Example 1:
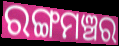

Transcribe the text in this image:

ରଙ୍ଗମଞ୍ଚର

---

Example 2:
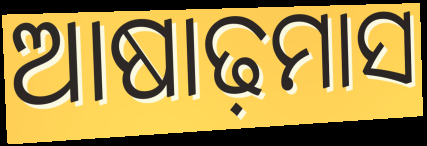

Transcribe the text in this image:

ଆଷାଢ଼ମାସ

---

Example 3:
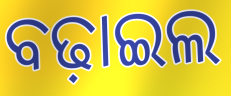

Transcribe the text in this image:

ବଢ଼ାଇଲ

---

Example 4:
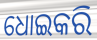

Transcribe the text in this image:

ଧୋଇକରି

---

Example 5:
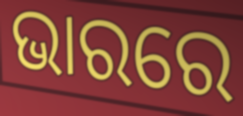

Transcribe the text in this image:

ଭାରରେ